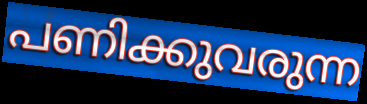
പണിക്കുവരുന്ന